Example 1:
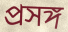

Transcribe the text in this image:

প্ৰসঙ্গ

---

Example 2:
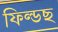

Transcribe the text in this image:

ফিল্ডছ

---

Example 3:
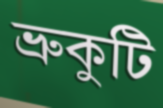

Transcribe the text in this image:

ভ্ৰুকুটি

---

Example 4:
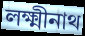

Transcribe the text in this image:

লক্ষ্মীনাথ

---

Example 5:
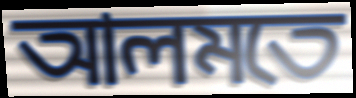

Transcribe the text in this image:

আলমতে